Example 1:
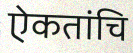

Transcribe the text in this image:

ऐकतांचि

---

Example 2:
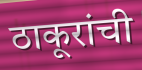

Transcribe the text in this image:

ठाकूरांची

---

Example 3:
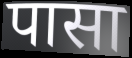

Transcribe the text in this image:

पासा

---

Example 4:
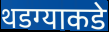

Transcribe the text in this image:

थडग्याकडे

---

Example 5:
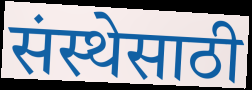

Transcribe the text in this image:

संस्थेसाठी